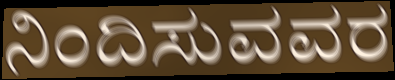
ನಿಂದಿಸುವವರ